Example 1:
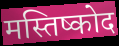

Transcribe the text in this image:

मस्तिष्कोद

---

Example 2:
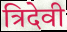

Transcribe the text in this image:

त्रिदेवी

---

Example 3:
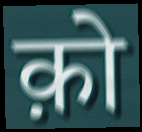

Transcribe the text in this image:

क़ो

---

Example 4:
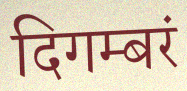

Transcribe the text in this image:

दिगम्बरं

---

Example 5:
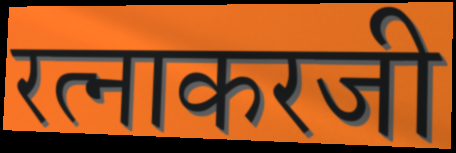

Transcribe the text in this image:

रत्नाकरजी